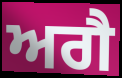
ਅਗੈ